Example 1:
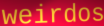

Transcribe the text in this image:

weirdos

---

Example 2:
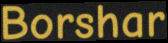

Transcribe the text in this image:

Borshar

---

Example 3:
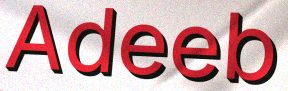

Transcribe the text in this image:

Adeeb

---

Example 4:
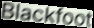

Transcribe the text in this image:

Blackfoot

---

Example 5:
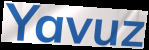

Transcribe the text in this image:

Yavuz